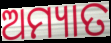
ଅମ୍ୟାତ